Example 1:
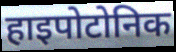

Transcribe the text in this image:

हाइपोटोनिक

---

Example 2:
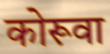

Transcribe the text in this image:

कोरूवा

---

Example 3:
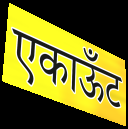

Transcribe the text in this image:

एकाऊँट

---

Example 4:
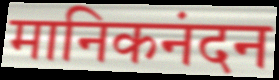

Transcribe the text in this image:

मानिकनंदन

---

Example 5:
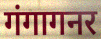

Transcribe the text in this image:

गंगागनर